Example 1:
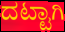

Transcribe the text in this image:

ದಟ್ಟಾಗಿ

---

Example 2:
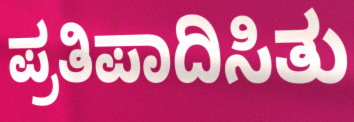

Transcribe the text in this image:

ಪ್ರತಿಪಾದಿಸಿತು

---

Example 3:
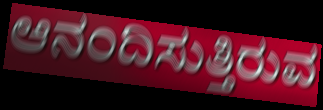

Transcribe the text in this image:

ಆನಂದಿಸುತ್ತಿರುವ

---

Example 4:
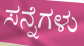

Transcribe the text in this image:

ಸನ್ನೆಗಳು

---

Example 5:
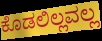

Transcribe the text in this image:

ಕೊಡಲಿಲ್ಲವಲ್ಲ